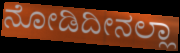
ನೋಡಿದೀನಲ್ಲಾ